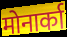
मोनार्का